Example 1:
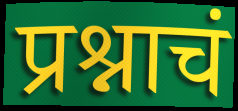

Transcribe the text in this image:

प्रश्नाचं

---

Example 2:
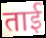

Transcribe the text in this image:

ताई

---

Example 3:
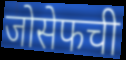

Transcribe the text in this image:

जोसेफची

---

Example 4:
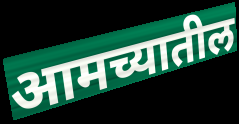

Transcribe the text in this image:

आमच्यातील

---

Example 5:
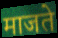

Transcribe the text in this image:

माजते